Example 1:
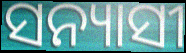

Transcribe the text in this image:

ସନ୍ୟାସୀ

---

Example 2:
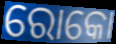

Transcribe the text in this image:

ରୋକୋ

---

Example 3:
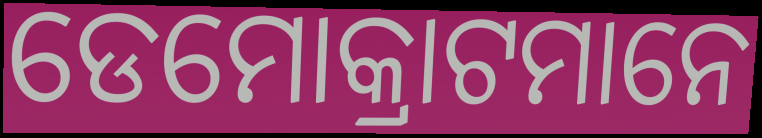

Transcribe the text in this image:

ଡେମୋକ୍ରାଟମାନେ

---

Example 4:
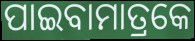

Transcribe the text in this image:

ପାଇବାମାତ୍ରକେ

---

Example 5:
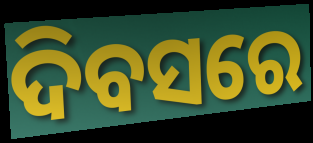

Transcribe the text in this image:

ଦିବସରେ